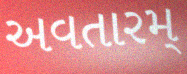
અવતારમ્